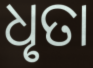
ଧୃତା